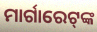
ମାର୍ଗାରେଟ୍‍ଙ୍କ